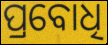
ପ୍ରବୋଧି